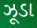
ઝૂડા